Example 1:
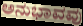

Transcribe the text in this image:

ಅನುಭಾವವು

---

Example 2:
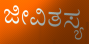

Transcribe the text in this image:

ಜೀವಿತಸ್ಯ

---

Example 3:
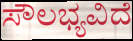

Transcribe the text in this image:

ಸೌಲಭ್ಯವಿದೆ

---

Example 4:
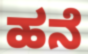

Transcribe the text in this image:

ಹನೆ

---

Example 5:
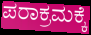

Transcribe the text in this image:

ಪರಾಕ್ರಮಕ್ಕೆ